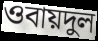
ওবায়দুল